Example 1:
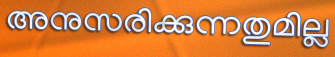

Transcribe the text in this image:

അനുസരിക്കുന്നതുമില്ല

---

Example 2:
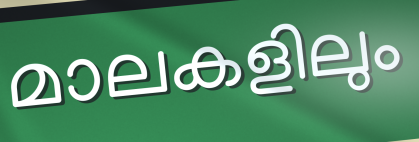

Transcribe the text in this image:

മാലകളിലും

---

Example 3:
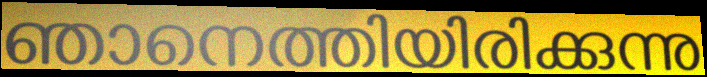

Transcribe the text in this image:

ഞാനെത്തിയിരിക്കുന്നു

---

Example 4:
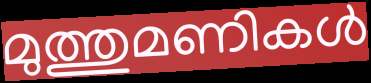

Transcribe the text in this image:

മുത്തുമണികൾ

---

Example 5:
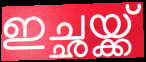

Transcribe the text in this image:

ഇച്ഛയ്ക്ക്